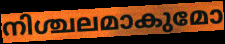
നിശ്ചലമാകുമോ